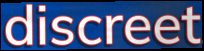
discreet